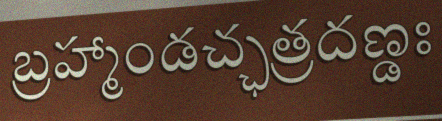
బ్రహ్మాండచ్ఛత్రదణ్డః